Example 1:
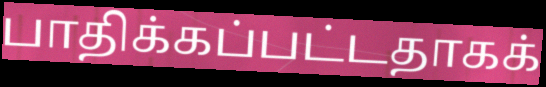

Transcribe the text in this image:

பாதிக்கப்பட்டதாகக்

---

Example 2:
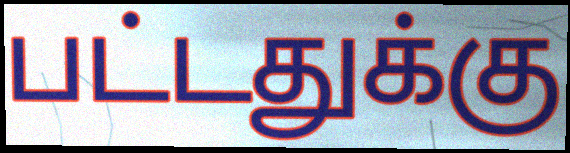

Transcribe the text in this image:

பட்டதுக்கு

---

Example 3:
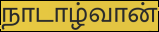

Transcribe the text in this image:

நாடாழ்வான்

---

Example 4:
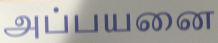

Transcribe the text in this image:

அப்பயனை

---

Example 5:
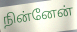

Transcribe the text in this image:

நின்னேன்